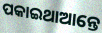
ପକାଇଥାଆନ୍ତେ